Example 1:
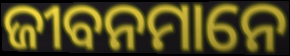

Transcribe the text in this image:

ଜୀବନମାନେ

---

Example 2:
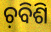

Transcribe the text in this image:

ଚ଼ବିଶି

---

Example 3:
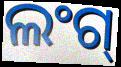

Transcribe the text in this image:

ଲଂଗ୍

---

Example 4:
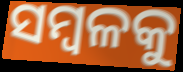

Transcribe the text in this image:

ସମ୍ବଳକୁ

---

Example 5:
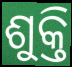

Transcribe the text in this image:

ଶୁକ୍ତି